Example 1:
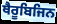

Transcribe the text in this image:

ਥੈਰੂਬਿਜਿਨ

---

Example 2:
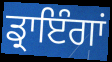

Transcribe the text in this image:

ਡ੍ਰਾਇੰਗਾਂ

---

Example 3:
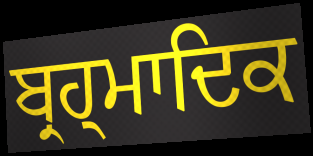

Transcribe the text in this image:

ਬ੍ਰਹ੍ਮਾਦਿਕ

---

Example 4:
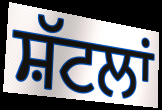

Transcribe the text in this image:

ਸ਼ੱਟਲਾਂ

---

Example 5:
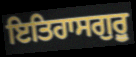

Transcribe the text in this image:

ਇਤਿਹਾਸਗੁਰੂ